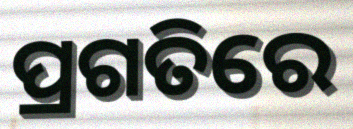
ପ୍ରଗତିରେ